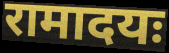
रामादयः